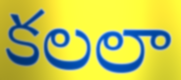
కలలా